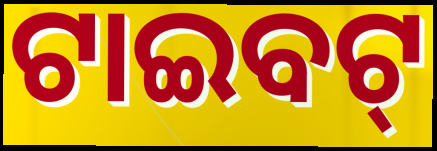
ଟାଇବଟ୍